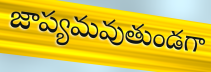
జాప్యమవుతుండగా